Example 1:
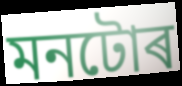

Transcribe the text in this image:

মনটোৰ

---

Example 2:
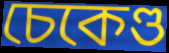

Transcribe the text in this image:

চেকেণ্ড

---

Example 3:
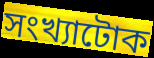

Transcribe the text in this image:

সংখ্যাটোক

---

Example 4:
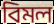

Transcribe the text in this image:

বিমল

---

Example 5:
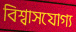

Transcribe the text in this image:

বিশ্বাসযোগ্য